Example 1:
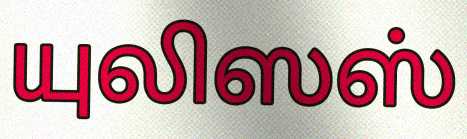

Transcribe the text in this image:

யுலிஸஸ்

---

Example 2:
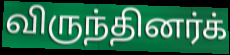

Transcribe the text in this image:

விருந்தினர்க்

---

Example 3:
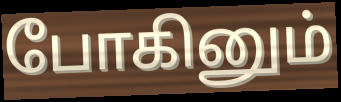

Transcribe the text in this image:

போகினும்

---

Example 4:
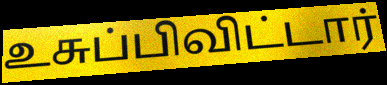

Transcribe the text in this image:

உசுப்பிவிட்டார்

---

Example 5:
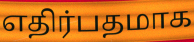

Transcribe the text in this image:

எதிர்பதமாக